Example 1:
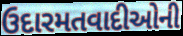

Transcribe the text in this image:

ઉદારમતવાદીઓની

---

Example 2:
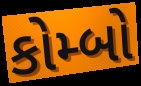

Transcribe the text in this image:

કોમ્બો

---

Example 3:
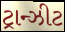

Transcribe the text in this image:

ટ્રાન્ઝીટ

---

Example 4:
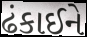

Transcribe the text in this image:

ઢંકાઈને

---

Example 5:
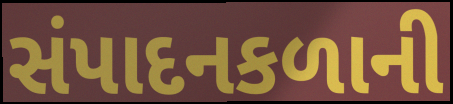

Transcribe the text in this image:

સંપાદનકળાની